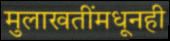
मुलाखतींमधूनही